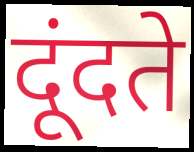
दूंदते